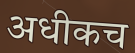
अधीकच